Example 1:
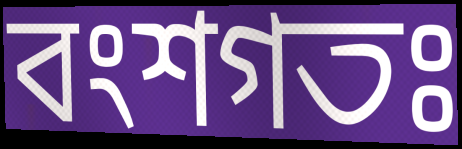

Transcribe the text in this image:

বংশগতঃ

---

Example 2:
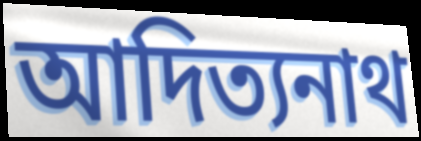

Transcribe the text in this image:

আদিত্যনাথ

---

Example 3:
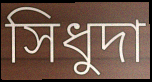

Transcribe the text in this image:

সিধুদা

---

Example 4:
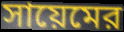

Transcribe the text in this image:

সায়েমের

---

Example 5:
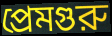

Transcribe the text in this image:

প্রেমগুরু